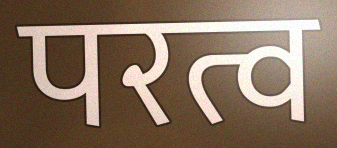
परत्व